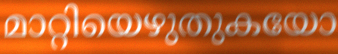
മാറ്റിയെഴുതുകയോ